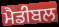
ਮੈਡੀਬਲ